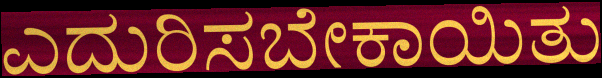
ಎದುರಿಸಬೇಕಾಯಿತು